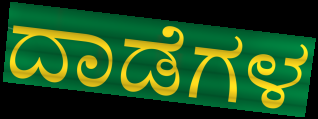
ದಾಡೆಗಳ